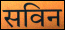
सविन